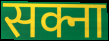
सक्ना